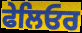
ਫੇਲਿਓਰ